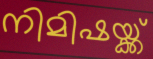
നിമിഷയ്ക്ക്